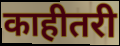
काहीतरी